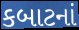
કબાટનાં